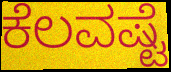
ಕೆಲವಷ್ಟೆ